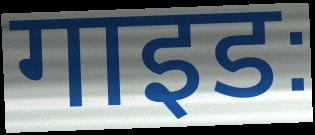
गाइडः